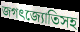
জগৎজ্যোতিসহ